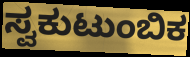
ಸ್ವಕುಟುಂಬಿಕ